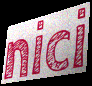
nici